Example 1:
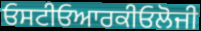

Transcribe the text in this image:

ਓਸਟੀਓਆਰਕੀਓਲੋਜੀ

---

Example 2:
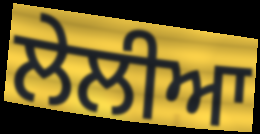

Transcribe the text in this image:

ਲੇਲੀਆ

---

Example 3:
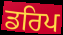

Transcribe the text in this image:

ਡਰਿਪ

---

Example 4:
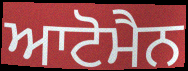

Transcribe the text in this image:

ਆਟੋਮੈਨ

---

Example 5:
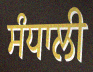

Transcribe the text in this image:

ਸੰਧਾਲੀ